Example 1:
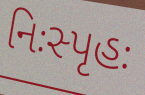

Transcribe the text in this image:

નિઃસ્પૃહઃ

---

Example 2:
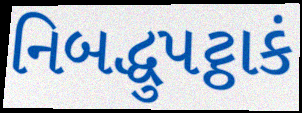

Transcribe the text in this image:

નિબદ્ધુપટ્ઠાકં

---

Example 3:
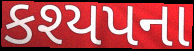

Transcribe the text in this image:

કશ્યપના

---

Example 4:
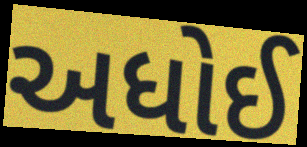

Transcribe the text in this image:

અધોઈ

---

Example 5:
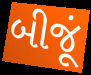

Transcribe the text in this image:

બીજૂં